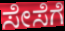
ಸೇಸೆಗೆ